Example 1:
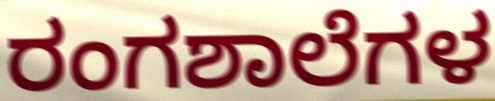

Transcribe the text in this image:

ರಂಗಶಾಲೆಗಳ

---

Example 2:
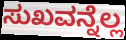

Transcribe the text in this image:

ಸುಖವನ್ನೆಲ್ಲ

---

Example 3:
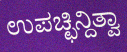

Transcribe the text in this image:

ಉಪಚ್ಛಿನ್ದಿತ್ವಾ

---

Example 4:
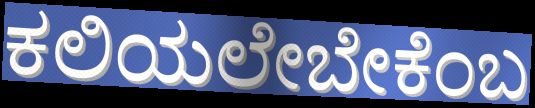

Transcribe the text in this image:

ಕಲಿಯಲೇಬೇಕೆಂಬ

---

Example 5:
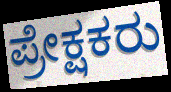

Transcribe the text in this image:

ಪ್ರೇಕ್ಷಕರು